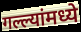
गल्ल्यांमध्ये